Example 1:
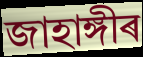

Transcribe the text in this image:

জাহাঙ্গীৰ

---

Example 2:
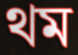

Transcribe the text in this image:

থম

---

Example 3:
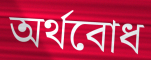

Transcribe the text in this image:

অৰ্থবোধ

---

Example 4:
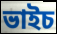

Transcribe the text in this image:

ভাইচ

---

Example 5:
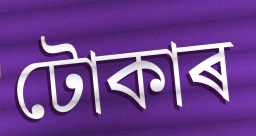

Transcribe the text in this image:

টোকাৰ